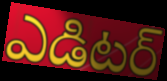
ఎడిటర్